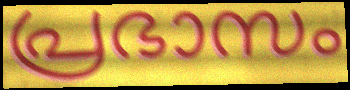
പ്രഭാസം